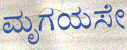
ಮೃಗಯಸೇ